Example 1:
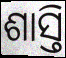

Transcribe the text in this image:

ଶାସ୍ତି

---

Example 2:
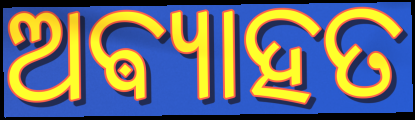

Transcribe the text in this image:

ଅଵ୍ୟାହତ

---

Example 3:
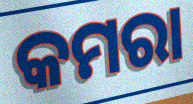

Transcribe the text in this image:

କମରା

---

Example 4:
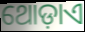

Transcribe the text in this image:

ଥୋଡ଼ାଏ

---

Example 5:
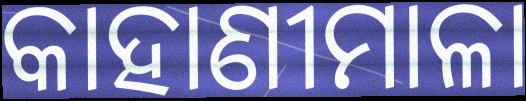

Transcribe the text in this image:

କାହାଣୀମାଳା